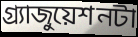
গ্র্যাজুয়েশনটা